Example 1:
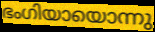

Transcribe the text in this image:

ഭംഗിയായൊന്നു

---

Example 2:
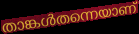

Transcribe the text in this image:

താങ്കൾതന്നെയാണ്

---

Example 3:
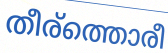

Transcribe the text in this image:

തീര്ത്തൊരീ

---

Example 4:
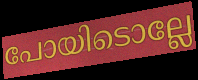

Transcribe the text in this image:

പോയിടൊല്ലേ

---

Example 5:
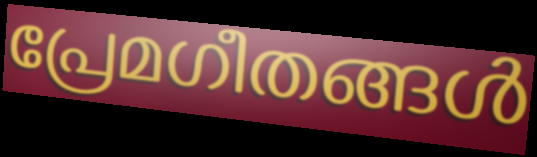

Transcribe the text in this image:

പ്രേമഗീതങ്ങൾ